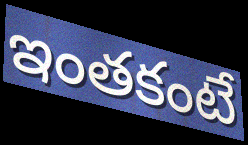
ఇంతకంటే